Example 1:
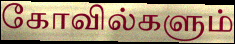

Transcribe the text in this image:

கோவில்களும்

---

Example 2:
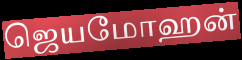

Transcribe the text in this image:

ஜெயமோஹன்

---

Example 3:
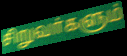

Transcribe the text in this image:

சிறுவர்களும்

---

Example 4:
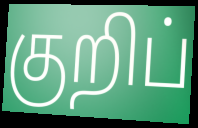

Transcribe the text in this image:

குறிப்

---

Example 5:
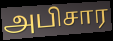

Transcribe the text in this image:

அபிசார